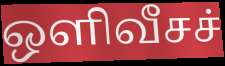
ஒளிவீசச்